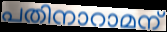
പതിനാറാമന്